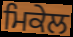
ਮਿਕੇਲ